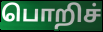
பொறிச்